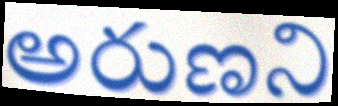
అరుణని